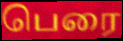
பெரை